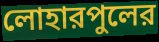
লোহারপুলের